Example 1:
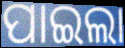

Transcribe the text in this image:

ପାଇଲା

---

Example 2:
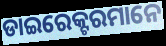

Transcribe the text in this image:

ଡାଇରେକ୍ଟରମାନେ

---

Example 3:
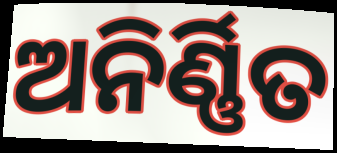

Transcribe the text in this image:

ଅନିର୍ଣ୍ଣିତ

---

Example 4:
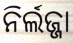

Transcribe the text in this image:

ନିର୍ଲଜ୍ଜା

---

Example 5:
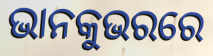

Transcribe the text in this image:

ଭାନକୁଭରରେ